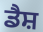
ਡੈਸ਼